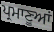
ਪ੍ਰਮਾਣੂਆਂ